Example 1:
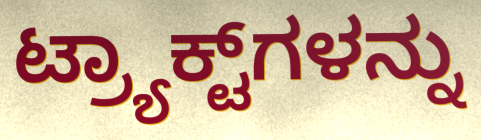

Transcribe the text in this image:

ಟ್ರ್ಯಾಕ್ಟ್‌ಗಳನ್ನು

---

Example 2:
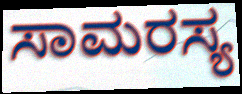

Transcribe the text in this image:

ಸಾಮರಸ್ಯ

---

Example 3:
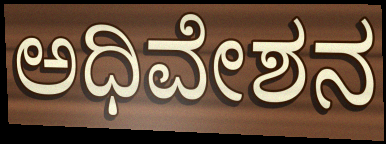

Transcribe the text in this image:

ಅಧಿವೇಶನ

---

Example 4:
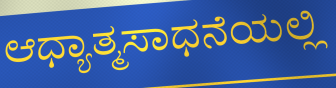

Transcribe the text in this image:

ಆಧ್ಯಾತ್ಮಸಾಧನೆಯಲ್ಲಿ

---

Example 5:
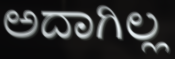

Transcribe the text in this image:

ಅದಾಗಿಲ್ಲ